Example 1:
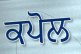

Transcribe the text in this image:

ਕਪੋਲ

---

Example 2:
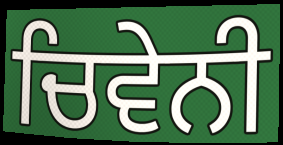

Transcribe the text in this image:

ਚਿਵੇਨੀ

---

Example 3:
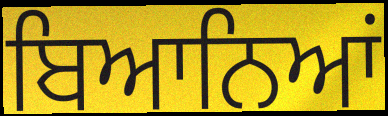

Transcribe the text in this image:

ਬਿਆਨਿਆਂ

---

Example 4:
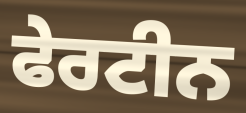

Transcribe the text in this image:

ਫੇਰਟੀਨ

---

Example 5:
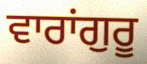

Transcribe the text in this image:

ਵਾਰਾਂਗੁਰੂ